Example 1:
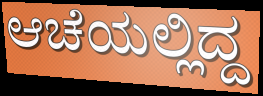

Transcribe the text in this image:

ಆಚೆಯಲ್ಲಿದ್ದ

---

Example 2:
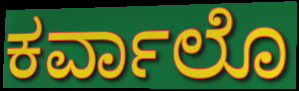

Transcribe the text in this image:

ಕರ್ವಾಲೊ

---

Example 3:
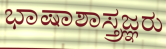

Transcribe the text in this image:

ಭಾಷಾಶಾಸ್ತ್ರಜ್ಞರು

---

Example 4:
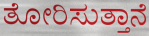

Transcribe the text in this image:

ತೋರಿಸುತ್ತಾನೆ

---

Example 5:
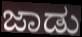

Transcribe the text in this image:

ಜಾಡು